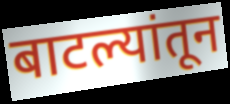
बाटल्यांतून